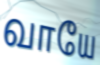
வாயே